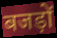
बजड़ों